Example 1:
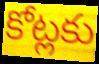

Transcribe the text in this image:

కోట్లకు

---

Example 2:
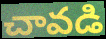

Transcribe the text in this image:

చావడి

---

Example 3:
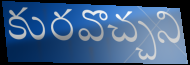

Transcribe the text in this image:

కురవొచ్చని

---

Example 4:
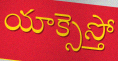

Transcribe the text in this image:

యాక్సెస్తో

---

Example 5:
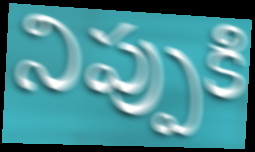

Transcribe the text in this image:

నిప్పుకి